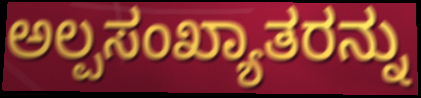
ಅಲ್ಪಸಂಖ್ಯಾತರನ್ನು